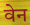
वेन